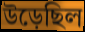
উড়েছিল